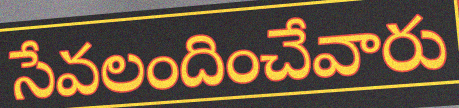
సేవలందించేవారు